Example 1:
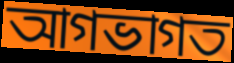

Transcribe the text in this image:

আগভাগত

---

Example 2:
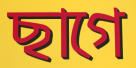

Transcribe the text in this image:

ছাগে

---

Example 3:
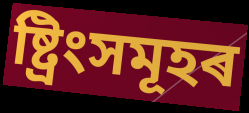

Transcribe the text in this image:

ষ্ট্ৰিংসমূহৰ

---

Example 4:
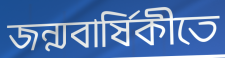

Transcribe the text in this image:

জন্মবাৰ্ষিকীতে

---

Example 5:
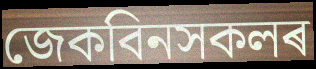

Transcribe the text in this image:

জেকবিনসকলৰ